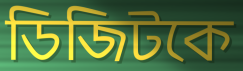
ডিজিটকে